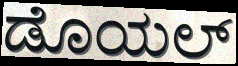
ಡೊಯಲ್